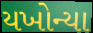
યખોન્યા